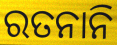
ରତନାନି